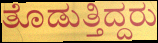
ತೊಡುತ್ತಿದ್ದರು